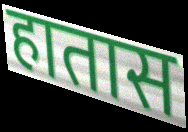
हातास